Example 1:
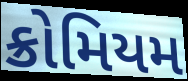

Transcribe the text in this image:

ક્રોમિયમ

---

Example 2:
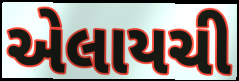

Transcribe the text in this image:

એલાયચી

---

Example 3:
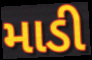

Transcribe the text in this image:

માડી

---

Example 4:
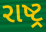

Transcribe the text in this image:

રાષ્ટ્ર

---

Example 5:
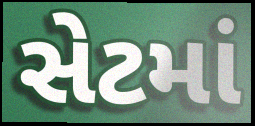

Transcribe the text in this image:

સેટમાં